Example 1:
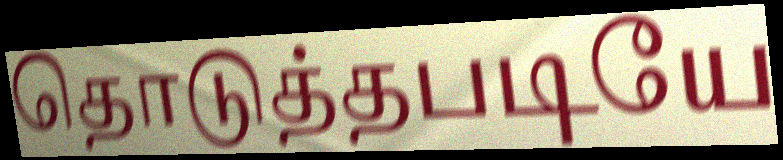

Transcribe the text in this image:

தொடுத்தபடியே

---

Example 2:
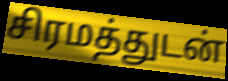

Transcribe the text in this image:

சிரமத்துடன்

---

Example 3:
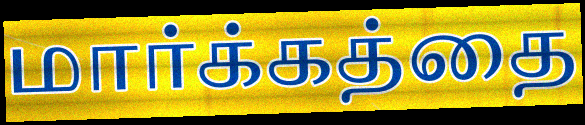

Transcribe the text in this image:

மார்க்கத்தை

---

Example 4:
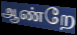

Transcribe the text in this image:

ஆண்றே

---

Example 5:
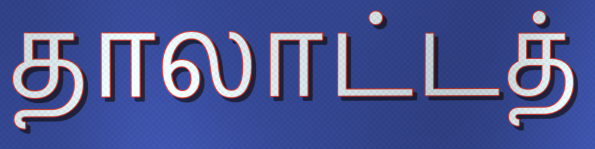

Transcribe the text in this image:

தாலாட்டத்